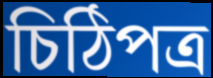
চিঠিপত্র